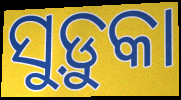
ସୁଡ଼ୁକା